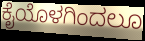
ಕೈಯೊಳಗಿಂದಲೂ